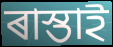
ৰাস্তাই